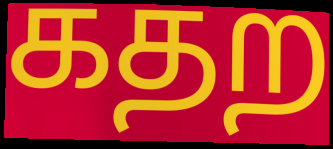
கதற